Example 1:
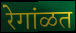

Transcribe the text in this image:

रेगांळत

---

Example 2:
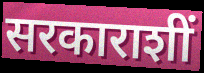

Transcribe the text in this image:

सरकाराशीं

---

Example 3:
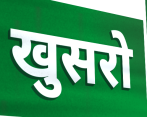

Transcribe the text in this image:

खुसरो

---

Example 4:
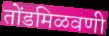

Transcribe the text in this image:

तोंडमिळवणी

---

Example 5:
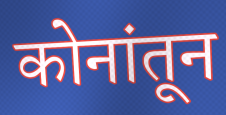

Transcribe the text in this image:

कोनांतून